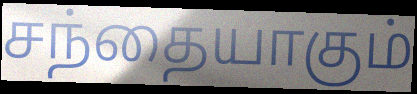
சந்தையாகும்